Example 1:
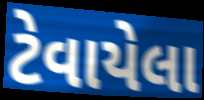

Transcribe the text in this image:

ટેવાયેલા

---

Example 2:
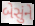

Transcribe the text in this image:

બેસુંને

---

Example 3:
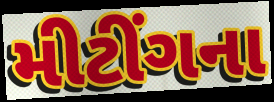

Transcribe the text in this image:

મીટીંગના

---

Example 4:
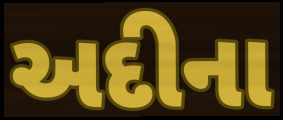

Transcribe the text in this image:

અદીના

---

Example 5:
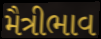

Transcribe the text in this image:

મૈત્રીભાવ